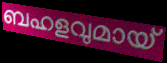
ബഹളവുമായ്